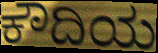
ಕೌದಿಯ